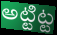
అట్టిట్ట